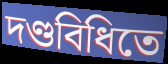
দণ্ডবিধিতে